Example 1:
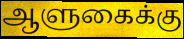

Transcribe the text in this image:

ஆளுகைக்கு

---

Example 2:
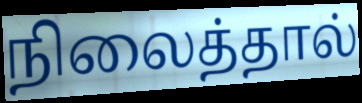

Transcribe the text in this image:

நிலைத்தால்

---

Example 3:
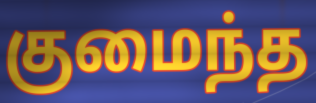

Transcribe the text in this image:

குமைந்த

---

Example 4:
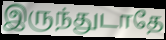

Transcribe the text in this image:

இருந்துடாதே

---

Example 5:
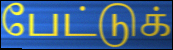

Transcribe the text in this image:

பேட்டுக்